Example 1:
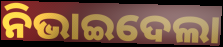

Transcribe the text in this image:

ନିଭାଇଦେଲା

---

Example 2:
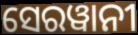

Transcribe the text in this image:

ସେରୱାନୀ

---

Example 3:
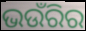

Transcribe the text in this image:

ଭଉଁରିର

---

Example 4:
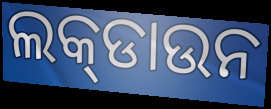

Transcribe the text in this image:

ଲକ୍‍ଡାଉନ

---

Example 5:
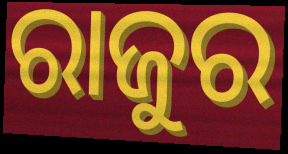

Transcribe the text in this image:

ରାଜୁର